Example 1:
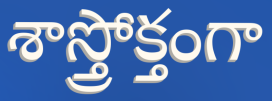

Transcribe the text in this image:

శాస్త్రోక్తంగా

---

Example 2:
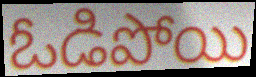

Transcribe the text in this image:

ఓడిపోయి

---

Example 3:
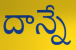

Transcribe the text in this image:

దాన్నే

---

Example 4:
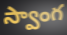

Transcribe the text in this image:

స్వాంగ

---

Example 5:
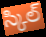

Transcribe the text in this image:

స్కిల్